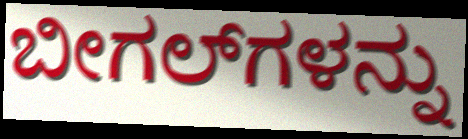
ಬೀಗಲ್‌ಗಳನ್ನು